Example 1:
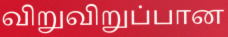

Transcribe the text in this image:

விறுவிறுப்பான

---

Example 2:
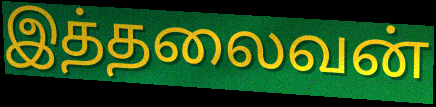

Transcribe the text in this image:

இத்தலைவன்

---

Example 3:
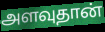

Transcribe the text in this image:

அளவுதான்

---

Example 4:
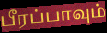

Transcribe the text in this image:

பீரப்பாவும்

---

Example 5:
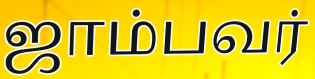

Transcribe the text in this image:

ஜாம்பவர்